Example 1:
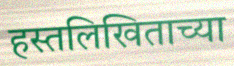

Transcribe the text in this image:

हस्तलिखिताच्या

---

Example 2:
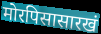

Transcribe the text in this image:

मोरपिसासारखं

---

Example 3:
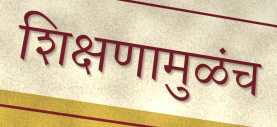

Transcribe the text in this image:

शिक्षणामुळंच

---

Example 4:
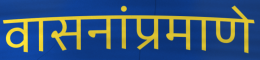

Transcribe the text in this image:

वासनांप्रमाणे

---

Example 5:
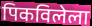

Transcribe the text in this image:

पिकविलेला